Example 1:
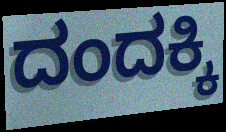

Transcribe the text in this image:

ದಂದಕ್ಕಿ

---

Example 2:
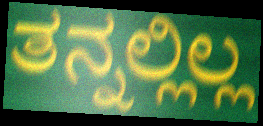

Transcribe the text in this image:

ತನ್ನಲ್ಲಿಲ್ಲ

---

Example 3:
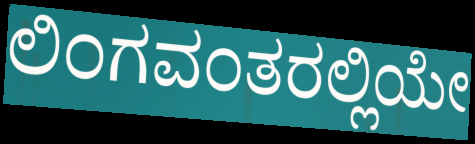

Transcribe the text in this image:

ಲಿಂಗವಂತರಲ್ಲಿಯೇ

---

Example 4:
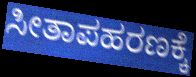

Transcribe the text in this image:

ಸೀತಾಪಹರಣಕ್ಕೆ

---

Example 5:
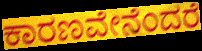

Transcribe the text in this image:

ಕಾರಣವೇನೆಂದರೆ